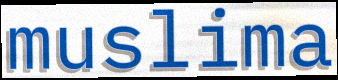
muslima